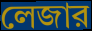
লেজার